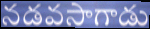
నడవసాగాడు